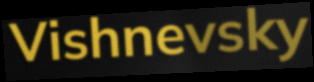
Vishnevsky